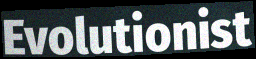
Evolutionist